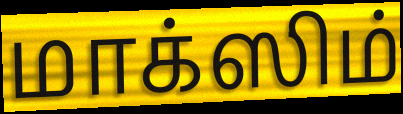
மாக்ஸிம்